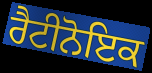
ਰੈਟੀਨੋਇਕ